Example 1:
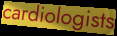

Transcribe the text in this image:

cardiologists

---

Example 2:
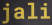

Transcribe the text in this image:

jali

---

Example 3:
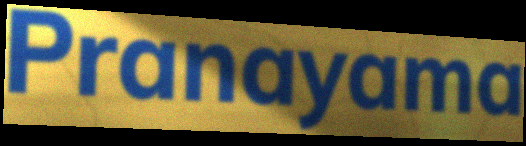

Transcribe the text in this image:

Pranayama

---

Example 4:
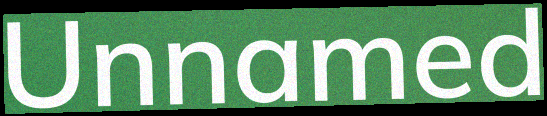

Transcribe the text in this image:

Unnamed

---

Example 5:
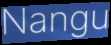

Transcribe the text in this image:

Nangu